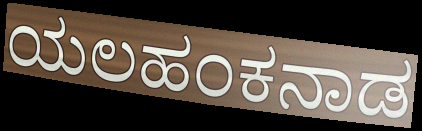
ಯಲಹಂಕನಾಡ